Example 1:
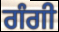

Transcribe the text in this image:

ਗੰਗੀ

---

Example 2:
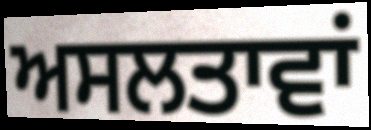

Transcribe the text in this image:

ਅਸਲਤਾਵਾਂ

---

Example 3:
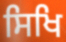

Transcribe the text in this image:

ਸਿਖਿ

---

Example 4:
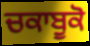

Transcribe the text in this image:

ਚਕਾਬੂਕੋ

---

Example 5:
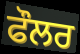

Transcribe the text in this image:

ਫੌਲਰ